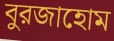
বুরজাহোম